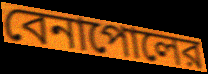
বেনাপোলের